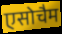
एसोचैम